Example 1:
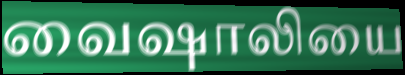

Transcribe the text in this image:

வைஷாலியை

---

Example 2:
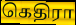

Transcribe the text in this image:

கெதிரா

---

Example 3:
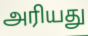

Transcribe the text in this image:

அரியது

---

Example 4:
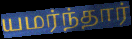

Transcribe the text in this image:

யமர்ந்தார்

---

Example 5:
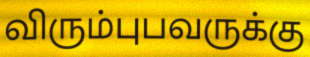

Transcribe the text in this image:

விரும்புபவருக்கு